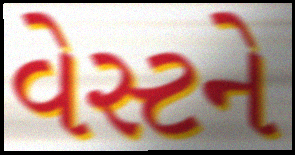
વેસ્ટને